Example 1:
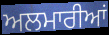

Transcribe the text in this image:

ਅਲਮਾਰੀਆਂ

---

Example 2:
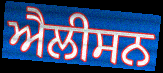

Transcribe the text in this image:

ਐਲੀਸਨ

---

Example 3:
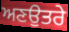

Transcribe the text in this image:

ਅਣਉਤਰੇ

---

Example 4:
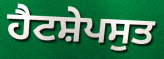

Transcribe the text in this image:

ਹੈਟਸ਼ੇਪਸੁਤ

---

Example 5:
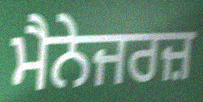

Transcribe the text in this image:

ਮੈਨੇਜਰਜ਼